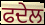
ਫਦੇਲ